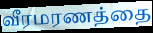
வீரமரணத்தை